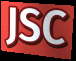
JSC